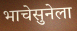
भाचेसुनेला